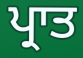
ਪ੍ਰਾਤ